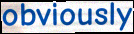
obviously